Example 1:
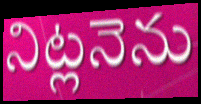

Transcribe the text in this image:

నిట్లనెను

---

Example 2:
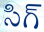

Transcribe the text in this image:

సిగ్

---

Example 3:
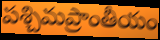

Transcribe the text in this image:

పశ్చిమప్రాంతీయం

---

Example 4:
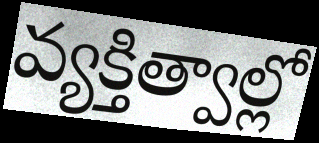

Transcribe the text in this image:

వ్యక్తిత్వాల్లో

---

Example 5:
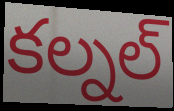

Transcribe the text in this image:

కల్నల్